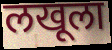
लखूला